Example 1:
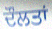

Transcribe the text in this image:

ਦੌਲਤਾਂ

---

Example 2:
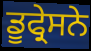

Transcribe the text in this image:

ਡੂਫ੍ਰੇਸਨੇ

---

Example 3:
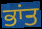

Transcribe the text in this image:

ਭਾਂਤ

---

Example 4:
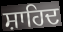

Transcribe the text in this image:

ਸ਼ਾਹਿਦ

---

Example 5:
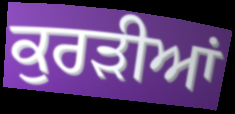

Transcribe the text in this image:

ਕੁਰੜੀਆਂ